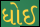
ધોઈ